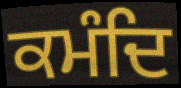
ਕਮੰਦਿ